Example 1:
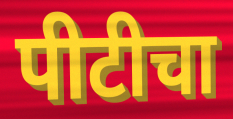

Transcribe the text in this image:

पीटीचा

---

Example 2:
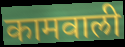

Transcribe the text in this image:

कामवाली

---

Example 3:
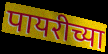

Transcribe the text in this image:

पायरीच्या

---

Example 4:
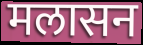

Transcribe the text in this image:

मलासन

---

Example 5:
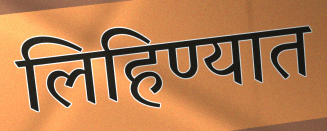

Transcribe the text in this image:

लिहिण्यात